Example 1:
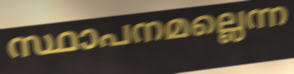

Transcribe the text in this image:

സ്ഥാപനമല്ലെന്ന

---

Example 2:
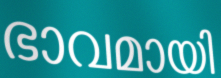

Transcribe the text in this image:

ഭാവമായി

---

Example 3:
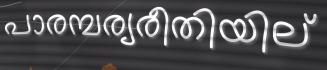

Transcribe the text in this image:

പാരമ്പര്യരീതിയില്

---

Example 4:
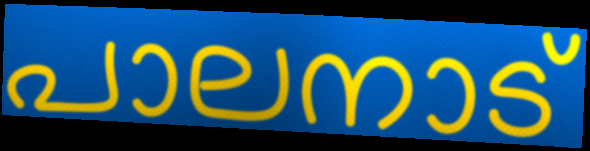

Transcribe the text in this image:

പാലനാട്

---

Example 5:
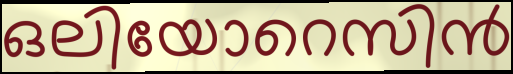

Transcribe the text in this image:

ഒലിയോറെസിൻ